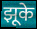
झूके